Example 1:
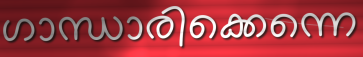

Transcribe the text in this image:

ഗാന്ധാരിക്കെന്നെ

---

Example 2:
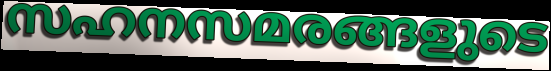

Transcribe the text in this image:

സഹനസമരങ്ങളുടെ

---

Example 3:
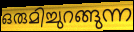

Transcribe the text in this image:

ഒരുമിച്ചുറങ്ങുന്ന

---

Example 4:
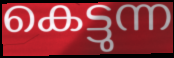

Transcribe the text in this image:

കെട്ടുന്ന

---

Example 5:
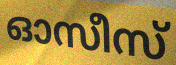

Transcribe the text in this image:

ഓസീസ്